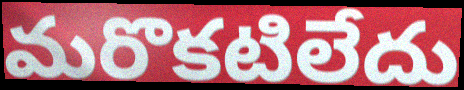
మరొకటిలేదు